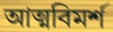
আত্মবিমর্শ